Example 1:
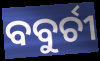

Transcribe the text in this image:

ବବୁର୍ଚୀ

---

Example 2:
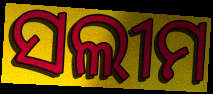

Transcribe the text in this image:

ସଲୀମ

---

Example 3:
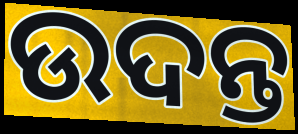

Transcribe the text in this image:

ଉଦନ୍ତ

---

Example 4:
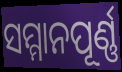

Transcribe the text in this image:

ସମ୍ମାନପୂର୍ଣ୍ଣ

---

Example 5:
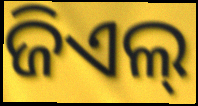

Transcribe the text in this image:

ଜିଏଲ୍